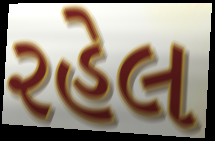
રહેલ